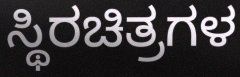
ಸ್ಥಿರಚಿತ್ರಗಳ